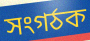
সংগঠক